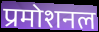
प्रमोशनल